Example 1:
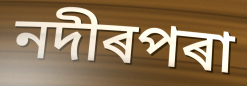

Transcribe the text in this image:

নদীৰপৰা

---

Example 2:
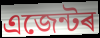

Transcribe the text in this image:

এজেন্টৰ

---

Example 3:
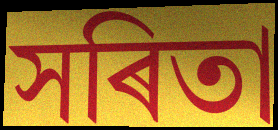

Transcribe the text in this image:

সৰিতা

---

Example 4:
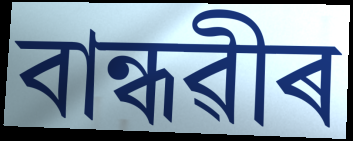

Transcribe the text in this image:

বান্ধৱীৰ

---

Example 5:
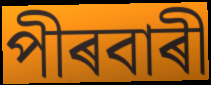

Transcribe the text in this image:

পীৰবাৰী